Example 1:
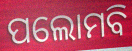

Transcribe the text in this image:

ପଲୋମବି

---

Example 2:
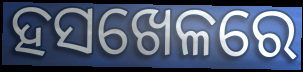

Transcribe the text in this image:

ହସଖେଳରେ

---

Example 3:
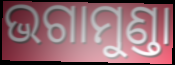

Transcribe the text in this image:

ଭଗାମୁଣ୍ଡା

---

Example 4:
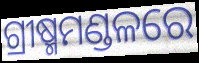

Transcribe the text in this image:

ଗ୍ରୀଷ୍ମମଣ୍ଡଳରେ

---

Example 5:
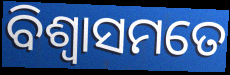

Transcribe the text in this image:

ବିଶ୍ୱାସମତେ